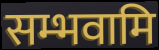
सम्भवामि